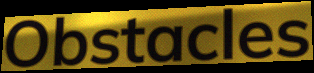
Obstacles